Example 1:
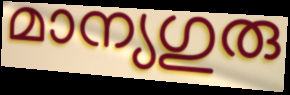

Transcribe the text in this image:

മാന്യഗുരു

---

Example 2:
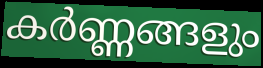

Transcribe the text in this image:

കർണ്ണങ്ങളും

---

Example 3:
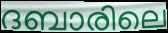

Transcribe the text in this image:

ദബാരിലെ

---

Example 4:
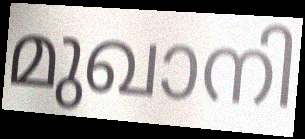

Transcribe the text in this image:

മുഖാനി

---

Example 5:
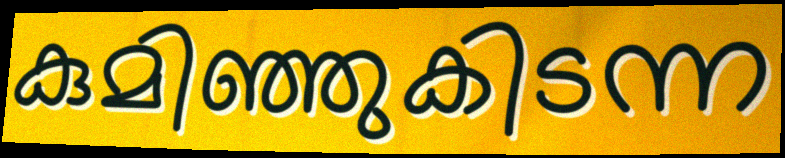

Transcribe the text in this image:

കുമിഞ്ഞുകിടന്ന